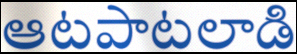
ఆటపాటలాడి